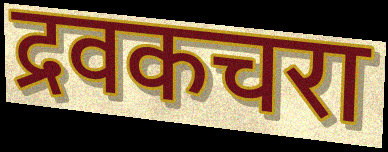
द्रवकचरा